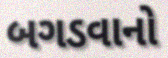
બગડવાનો